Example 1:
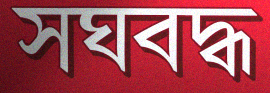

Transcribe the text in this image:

সঘবদ্ধ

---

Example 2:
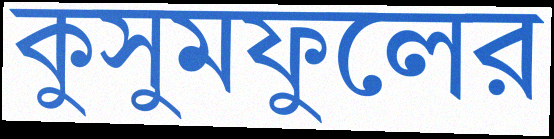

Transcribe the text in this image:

কুসুমফুলের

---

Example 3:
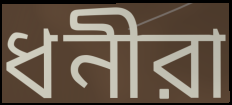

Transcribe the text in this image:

ধনীরা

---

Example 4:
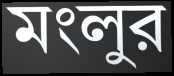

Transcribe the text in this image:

মংলুর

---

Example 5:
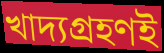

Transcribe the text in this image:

খাদ্যগ্রহণই